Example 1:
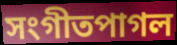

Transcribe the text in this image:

সংগীতপাগল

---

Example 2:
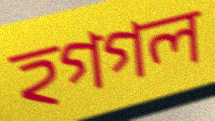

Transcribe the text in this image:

হগগল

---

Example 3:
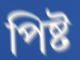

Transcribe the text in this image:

পিষ্ট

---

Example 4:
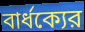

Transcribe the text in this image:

বার্ধক্যের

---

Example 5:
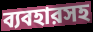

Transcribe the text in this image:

ব্যবহারসহ